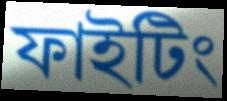
ফাইটিং